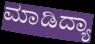
ಮಾಡಿದ್ಯಾ